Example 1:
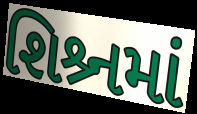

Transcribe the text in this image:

શિશ્ર્નમાં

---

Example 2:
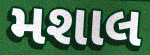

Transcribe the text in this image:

મશાલ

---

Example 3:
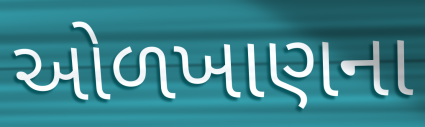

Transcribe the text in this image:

ઓળખાણના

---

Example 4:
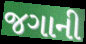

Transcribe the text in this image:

જગાની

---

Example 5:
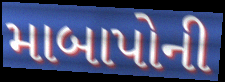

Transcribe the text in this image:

માબાપોની